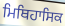
ਮਿਥਿਹਾਸਿਕ